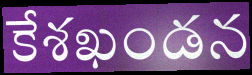
కేశఖండన